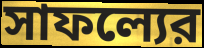
সাফল্যের